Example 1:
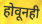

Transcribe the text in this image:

होवूनही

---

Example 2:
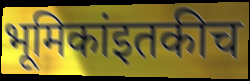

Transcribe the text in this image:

भूमिकांइतकीच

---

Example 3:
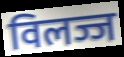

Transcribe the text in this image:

विलज्ज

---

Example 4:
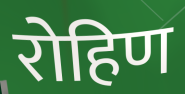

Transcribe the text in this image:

रोहिण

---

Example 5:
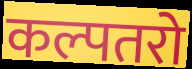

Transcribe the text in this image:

कल्पतरो